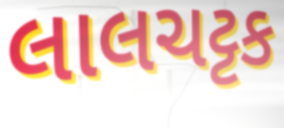
લાલચટ્ટક